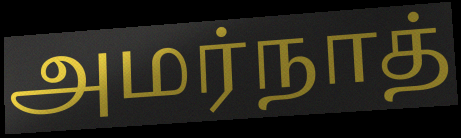
அமர்நாத்